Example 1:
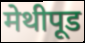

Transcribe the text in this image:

मेथीपूड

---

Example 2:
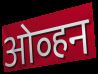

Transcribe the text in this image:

ओव्हन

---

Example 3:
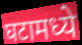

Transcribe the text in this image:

घटामध्ये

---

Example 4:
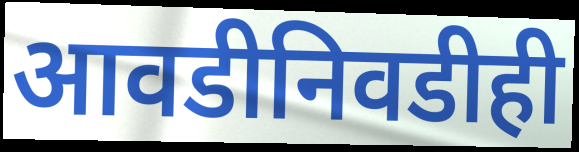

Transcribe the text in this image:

आवडीनिवडीही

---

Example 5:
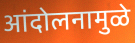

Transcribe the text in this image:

आंदोलनामुळे